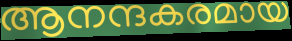
ആനന്ദകരമായ